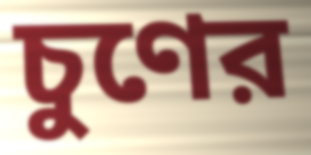
চুণের